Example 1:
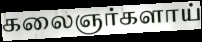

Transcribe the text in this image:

கலைஞர்களாய்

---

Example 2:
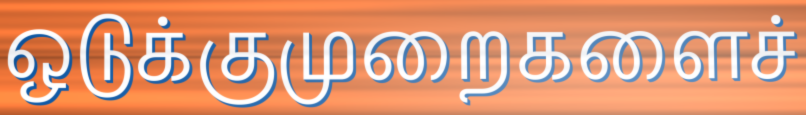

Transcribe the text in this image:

ஒடுக்குமுறைகளைச்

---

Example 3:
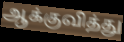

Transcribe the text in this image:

ஆக்குவித்து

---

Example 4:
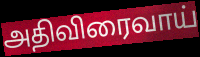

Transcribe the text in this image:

அதிவிரைவாய்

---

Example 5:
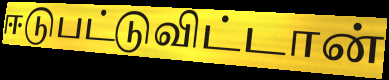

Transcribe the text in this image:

ஈடுபட்டுவிட்டான்